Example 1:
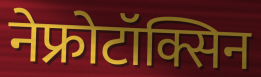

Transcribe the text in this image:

नेफ्रोटॉक्सिन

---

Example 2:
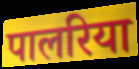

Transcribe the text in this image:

पालरिया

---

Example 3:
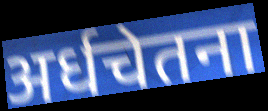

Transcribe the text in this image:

अर्धचेतना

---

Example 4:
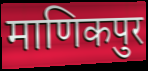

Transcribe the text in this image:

माणिकपुर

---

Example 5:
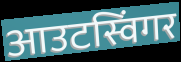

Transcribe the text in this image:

आउटस्विंगर